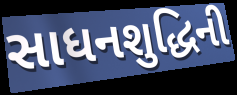
સાધનશુદ્ધિની